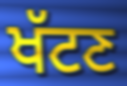
ਖੱਟਣ